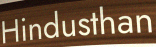
Hindusthan